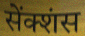
सेंक्शंस